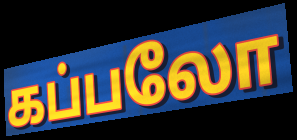
கப்பலோ